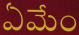
ఏమేం